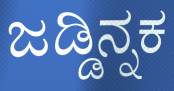
ಜಡ್ಡಿನ್ನಕ